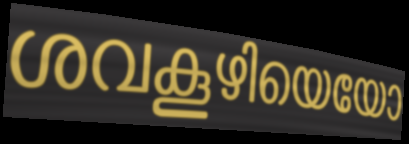
ശവകൂഴിയെയോ